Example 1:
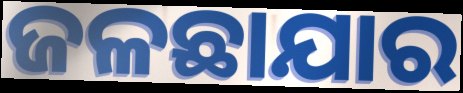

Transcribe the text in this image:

ଜଳଛାଯାର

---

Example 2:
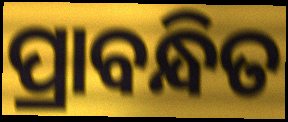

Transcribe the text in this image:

ପ୍ରାବନ୍ଧିତ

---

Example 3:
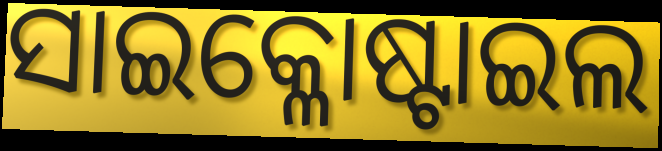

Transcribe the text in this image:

ସାଇକ୍ଳୋଷ୍ଟାଇଲ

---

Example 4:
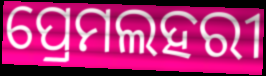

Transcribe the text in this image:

ପ୍ରେମଲହରୀ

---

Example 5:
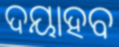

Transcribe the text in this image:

ଦୟାହବ